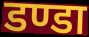
डण्डा